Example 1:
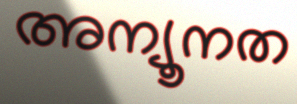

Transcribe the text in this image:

അന്യൂനത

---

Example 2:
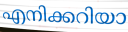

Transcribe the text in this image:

എനിക്കറിയാ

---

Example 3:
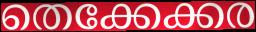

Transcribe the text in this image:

തെക്കേക്കര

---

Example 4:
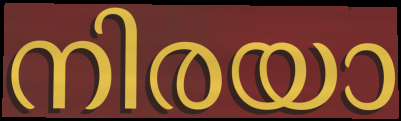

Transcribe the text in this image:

നിരയാ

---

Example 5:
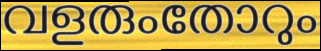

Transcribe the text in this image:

വളരുംതോറും